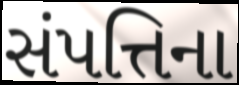
સંપત્તિના